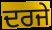
ਦਰਜੇ